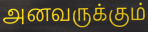
அனவருக்கும்